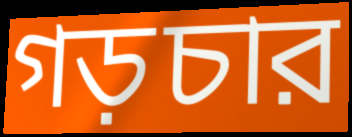
গড়চার